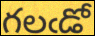
గలఁడో